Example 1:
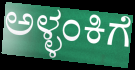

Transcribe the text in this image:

ಅಳ್ಳಂಕಿಗೆ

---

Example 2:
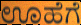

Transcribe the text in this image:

ಊಹೆಗೆ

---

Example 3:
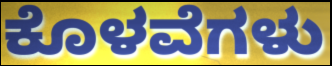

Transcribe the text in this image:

ಕೊಳವೆಗಳು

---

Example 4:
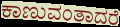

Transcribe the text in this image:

ಕಾಣುವಂತಾದರೆ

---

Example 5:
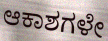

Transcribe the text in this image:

ಆಕಾಶಗಳೇ